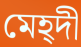
মেহ্দী